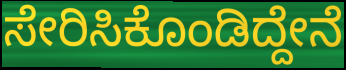
ಸೇರಿಸಿಕೊಂಡಿದ್ದೇನೆ